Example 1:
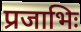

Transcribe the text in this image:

प्रजाभिः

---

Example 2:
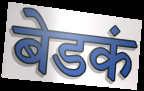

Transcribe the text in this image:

बेडकं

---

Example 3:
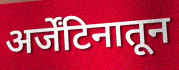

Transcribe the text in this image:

अर्जेंटिनातून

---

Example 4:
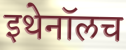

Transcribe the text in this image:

इथेनॉलच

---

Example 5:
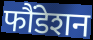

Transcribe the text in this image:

फौंडेशन